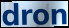
dron